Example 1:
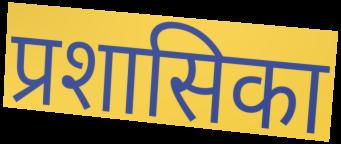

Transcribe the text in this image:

प्रशासिका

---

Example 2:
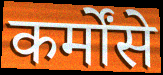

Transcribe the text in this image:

कर्मोंसे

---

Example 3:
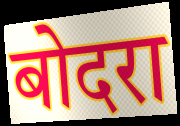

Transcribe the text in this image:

बोदरा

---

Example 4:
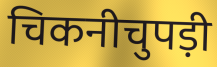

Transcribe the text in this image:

चिकनीचुपड़ी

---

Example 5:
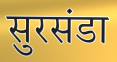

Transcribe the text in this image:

सुरसंडा